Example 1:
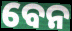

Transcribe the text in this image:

ବେନ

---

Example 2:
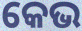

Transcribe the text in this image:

କେଭ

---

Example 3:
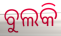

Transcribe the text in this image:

ବୁଲକି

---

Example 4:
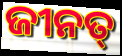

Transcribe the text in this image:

ଜୀନତ୍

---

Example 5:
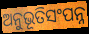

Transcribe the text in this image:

ଅନୁଭୂତିସଂପନ୍ନ